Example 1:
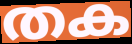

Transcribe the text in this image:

തക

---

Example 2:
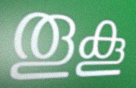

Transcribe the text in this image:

തൂകൂ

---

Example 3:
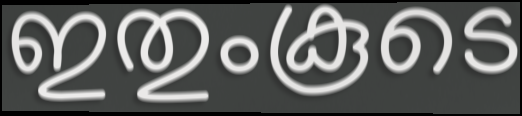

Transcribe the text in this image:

ഇതുംകൂടെ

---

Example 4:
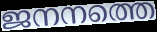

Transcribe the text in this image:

ജനനത്തെ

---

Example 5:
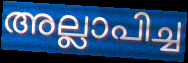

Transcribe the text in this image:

അല്ലാപിച്ച